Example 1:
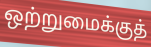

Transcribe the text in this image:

ஒற்றுமைக்குத்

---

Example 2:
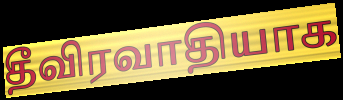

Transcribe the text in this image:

தீவிரவாதியாக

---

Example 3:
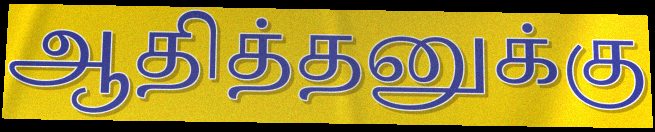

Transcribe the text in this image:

ஆதித்தனுக்கு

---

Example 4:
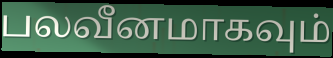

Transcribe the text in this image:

பலவீனமாகவும்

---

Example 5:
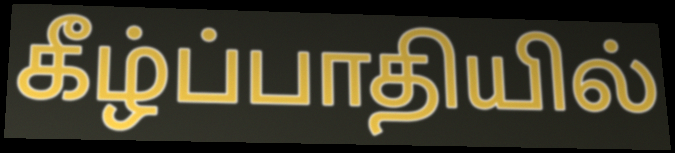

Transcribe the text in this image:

கீழ்ப்பாதியில்